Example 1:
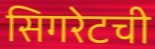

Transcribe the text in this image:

सिगरेटची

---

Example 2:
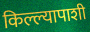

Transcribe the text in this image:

किल्ल्यापाशी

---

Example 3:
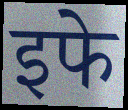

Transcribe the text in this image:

इफे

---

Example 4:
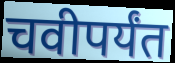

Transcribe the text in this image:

चवीपर्यंत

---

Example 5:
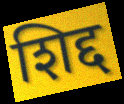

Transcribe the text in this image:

शिद्द